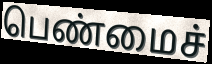
பெண்மைச்